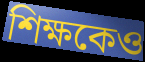
শিক্ষকেও